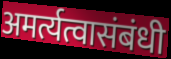
अमर्त्यत्वासंबंधी